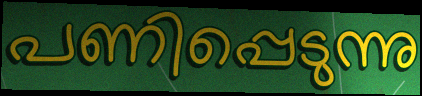
പണിപ്പെടുന്നു